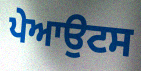
ਪੇਆਉਟਸ